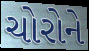
ચોરોને